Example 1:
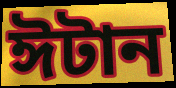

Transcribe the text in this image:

ঈটান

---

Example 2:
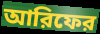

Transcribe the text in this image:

আরিফের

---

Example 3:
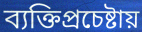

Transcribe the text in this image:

ব্যক্তিপ্রচেষ্টায়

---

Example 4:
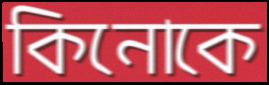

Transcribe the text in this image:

কিনোকে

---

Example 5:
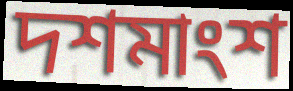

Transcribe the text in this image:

দশমাংশ